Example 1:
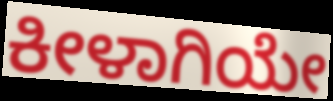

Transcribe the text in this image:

ಕೀಳಾಗಿಯೇ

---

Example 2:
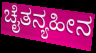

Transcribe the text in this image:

ಚೈತನ್ಯಹೀನ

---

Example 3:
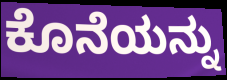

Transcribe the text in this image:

ಕೊನೆಯನ್ನು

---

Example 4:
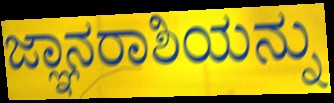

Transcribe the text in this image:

ಜ್ಞಾನರಾಶಿಯನ್ನು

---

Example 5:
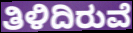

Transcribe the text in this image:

ತಿಳಿದಿರುವೆ